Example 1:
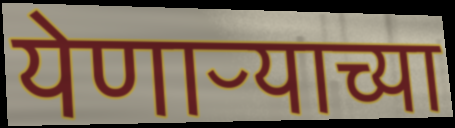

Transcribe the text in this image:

येणाऱ्याच्या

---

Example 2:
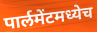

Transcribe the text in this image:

पार्लमेंटमध्येच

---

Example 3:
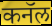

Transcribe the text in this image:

कनॅल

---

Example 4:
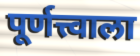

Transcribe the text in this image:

पूर्णत्त्वाला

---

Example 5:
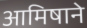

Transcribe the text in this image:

आमिषाने